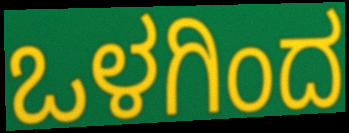
ಒಳಗಿಂದ